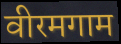
वीरमगाम